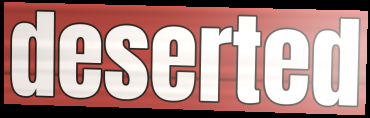
deserted